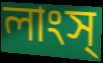
লাংস্